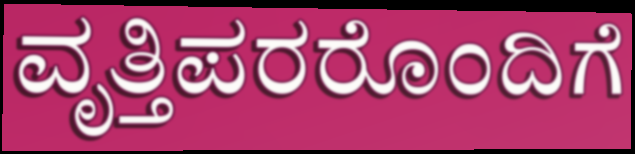
ವೃತ್ತಿಪರರೊಂದಿಗೆ